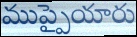
ముప్పైయారు